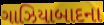
ગાઝિયાબાદના